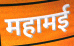
महामई